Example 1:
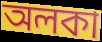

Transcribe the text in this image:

অলকা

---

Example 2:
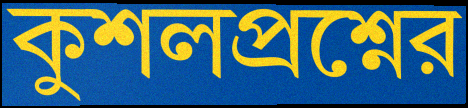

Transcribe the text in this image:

কুশলপ্রশ্নের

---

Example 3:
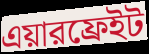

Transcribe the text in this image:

এয়ারফ্রেইট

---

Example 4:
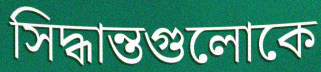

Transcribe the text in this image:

সিদ্ধান্তগুলোকে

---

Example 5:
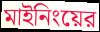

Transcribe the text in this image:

মাইনিংয়ের